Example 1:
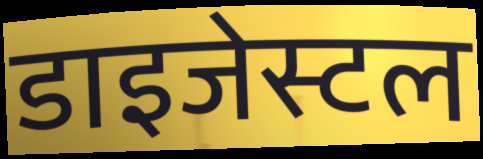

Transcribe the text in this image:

डाइजेस्टल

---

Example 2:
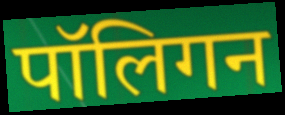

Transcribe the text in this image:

पॉलिगन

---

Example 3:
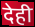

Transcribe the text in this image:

देही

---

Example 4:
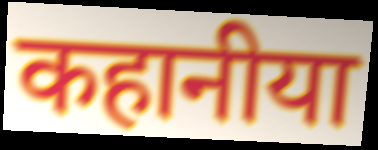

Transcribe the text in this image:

कहानीया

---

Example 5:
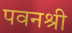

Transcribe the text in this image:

पवनश्री